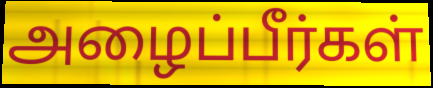
அழைப்பீர்கள்